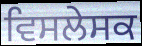
ਵਿਸਲੇਸਕ